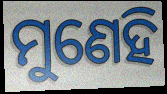
ମୁଣେହି